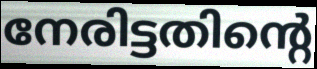
നേരിട്ടതിന്റെ